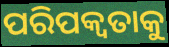
ପରିପକ୍ୱତାକୁ